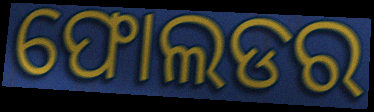
ଫୋଲଡର